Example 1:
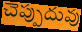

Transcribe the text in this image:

చెప్పుదువు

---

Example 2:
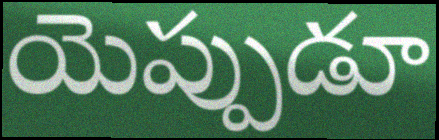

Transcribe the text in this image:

యెప్పుడూ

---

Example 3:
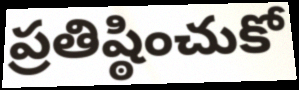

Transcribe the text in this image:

ప్రతిష్ఠించుకో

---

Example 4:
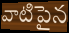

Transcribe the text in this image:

వాటిపైన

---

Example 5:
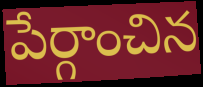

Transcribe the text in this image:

పేర్గాంచిన